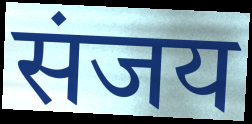
संजय